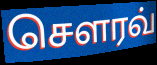
சௌரவ்